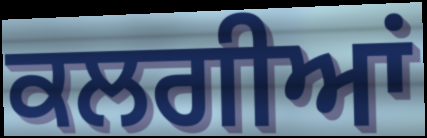
ਕਲਗੀਆਂ